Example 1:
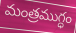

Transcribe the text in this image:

మంత్రముగ్ధం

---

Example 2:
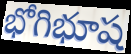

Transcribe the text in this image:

భోగిభూష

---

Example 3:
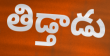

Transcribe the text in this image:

తిడ్తాడు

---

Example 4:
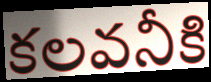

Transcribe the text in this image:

కలవనీకి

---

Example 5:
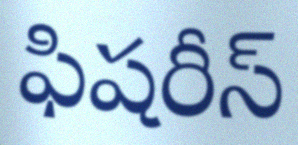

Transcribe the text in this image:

ఫిషరీస్